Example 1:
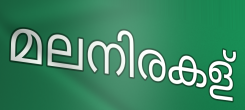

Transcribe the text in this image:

മലനിരകള്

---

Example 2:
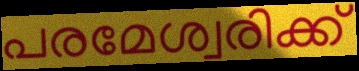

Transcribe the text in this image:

പരമേശ്വരിക്ക്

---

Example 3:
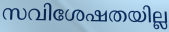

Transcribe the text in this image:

സവിശേഷതയില്ല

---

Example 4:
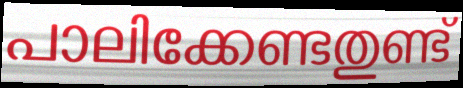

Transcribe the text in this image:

പാലിക്കേണ്ടതുണ്ട്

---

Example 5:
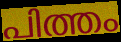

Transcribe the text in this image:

പിത്തം